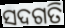
ସଦଗତି